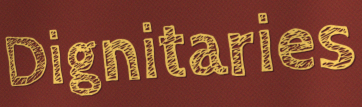
Dignitaries